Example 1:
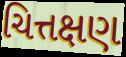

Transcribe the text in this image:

ચિત્તક્ષણ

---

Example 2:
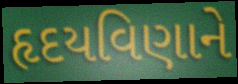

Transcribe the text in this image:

હૃદયવિણાને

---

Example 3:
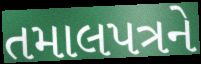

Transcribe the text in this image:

તમાલપત્રને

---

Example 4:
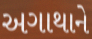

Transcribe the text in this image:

અગાથાને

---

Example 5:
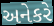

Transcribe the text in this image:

અનેકરે